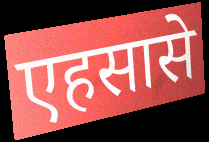
एहसासे